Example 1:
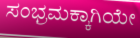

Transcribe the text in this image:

ಸಂಭ್ರಮಕ್ಕಾಗಿಯೇ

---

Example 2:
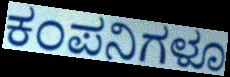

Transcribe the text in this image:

ಕಂಪನಿಗಳೂ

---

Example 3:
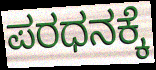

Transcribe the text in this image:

ಪರಧನಕ್ಕೆ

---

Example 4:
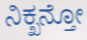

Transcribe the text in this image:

ನಿಕ್ಖನ್ತೋ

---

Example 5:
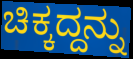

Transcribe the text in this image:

ಚಿಕ್ಕದ್ದನ್ನು